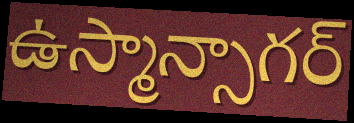
ఉస్మాన్సాగర్